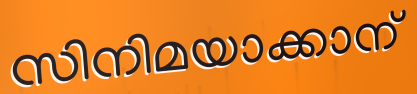
സിനിമയാക്കാന്